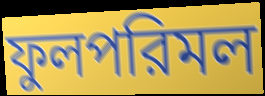
ফুলপরিমল